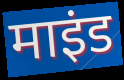
माइंड